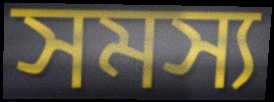
সমস্য